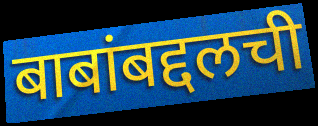
बाबांबद्दलची